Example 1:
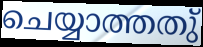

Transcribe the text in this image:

ചെയ്യാത്തതു്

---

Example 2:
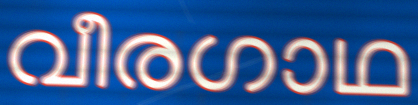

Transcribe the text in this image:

വീരഗാഥ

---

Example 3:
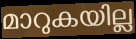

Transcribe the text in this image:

മാറുകയില്ല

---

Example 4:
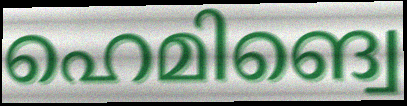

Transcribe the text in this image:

ഹെമിങ്വെ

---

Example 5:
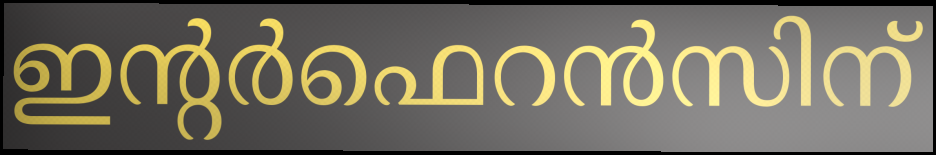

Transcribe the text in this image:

ഇന്റർഫെറൻസിന്